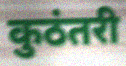
कुठंतरी